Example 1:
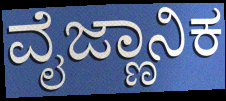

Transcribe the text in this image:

ವೈಜ್ಣಾನಿಕ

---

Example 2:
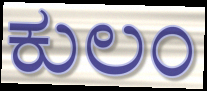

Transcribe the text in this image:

ಕುಲಂ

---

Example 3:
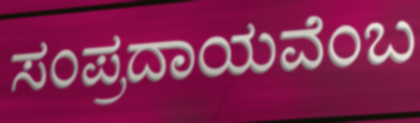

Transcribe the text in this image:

ಸಂಪ್ರದಾಯವೆಂಬ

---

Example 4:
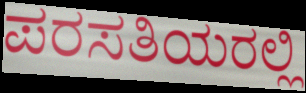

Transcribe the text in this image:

ಪರಸತಿಯರಲ್ಲಿ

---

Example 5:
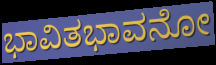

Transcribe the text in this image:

ಭಾವಿತಭಾವನೋ